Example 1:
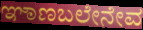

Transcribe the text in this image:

ಞಾಣಬಲೇನೇವ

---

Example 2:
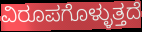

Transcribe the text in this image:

ವಿರೂಪಗೊಳ್ಳುತ್ತದೆ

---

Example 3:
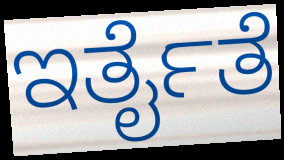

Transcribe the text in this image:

ಇರ್ತೈತೆ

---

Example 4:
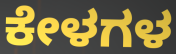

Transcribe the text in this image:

ಕೇಳಗಳ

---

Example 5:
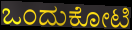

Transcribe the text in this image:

ಒಂದುಕೋಟಿ